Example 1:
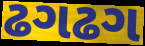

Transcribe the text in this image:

ઢગઢગ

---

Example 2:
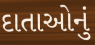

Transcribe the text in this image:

દાતાઓનું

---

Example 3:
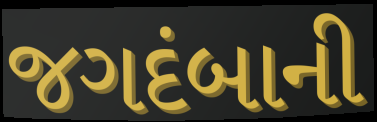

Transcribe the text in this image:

જગદંબાની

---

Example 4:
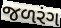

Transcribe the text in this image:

જળરંગ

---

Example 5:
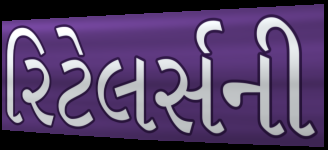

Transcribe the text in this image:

રિટેલર્સની